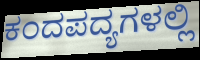
ಕಂದಪದ್ಯಗಳಲ್ಲಿ